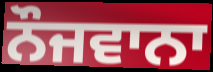
ਨੌਜਵਾਨਾ